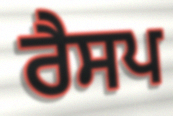
ਰੈਸਪ